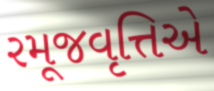
રમૂજવૃત્તિએ